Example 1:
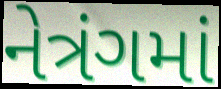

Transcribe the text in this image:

નેત્રંગમાં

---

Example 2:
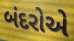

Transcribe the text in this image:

બંદરોએ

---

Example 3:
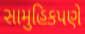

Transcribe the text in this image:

સામુહિકપણે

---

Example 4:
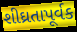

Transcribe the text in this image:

શીઘ્રતાપૂર્વક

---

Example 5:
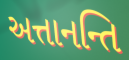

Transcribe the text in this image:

અત્તાનન્તિ